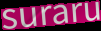
suraru